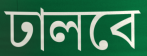
ঢালবে